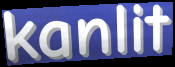
kanlit